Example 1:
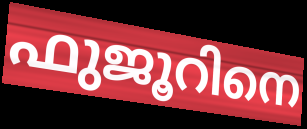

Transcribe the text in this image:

ഫുജൂറിനെ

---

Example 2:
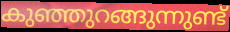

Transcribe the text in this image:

കുഞ്ഞുറങ്ങുന്നുണ്ട്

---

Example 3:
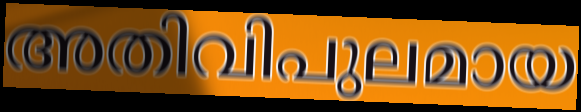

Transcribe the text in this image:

അതിവിപുലമായ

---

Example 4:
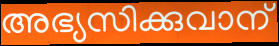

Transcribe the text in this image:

അഭ്യസിക്കുവാന്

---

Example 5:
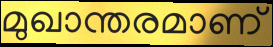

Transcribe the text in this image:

മുഖാന്തരമാണ്